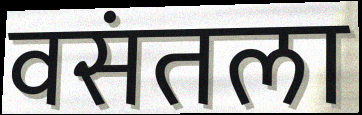
वसंतला